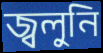
জ্বলুনি